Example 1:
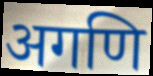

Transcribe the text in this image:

अगणि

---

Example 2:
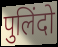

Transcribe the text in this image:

पुलिंदो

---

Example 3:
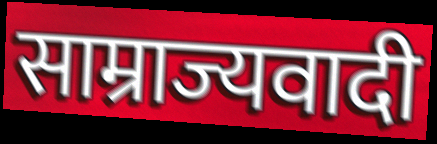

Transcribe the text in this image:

साम्राज्‍यवादी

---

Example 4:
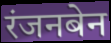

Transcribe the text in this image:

रंजनबेन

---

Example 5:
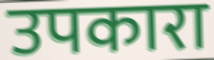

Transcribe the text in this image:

उपकारा